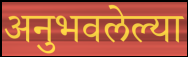
अनुभवलेल्या